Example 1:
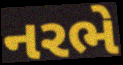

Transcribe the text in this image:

નરભે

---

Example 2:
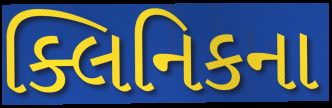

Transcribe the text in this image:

ક્લિનિકના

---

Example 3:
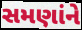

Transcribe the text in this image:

સમણાંને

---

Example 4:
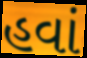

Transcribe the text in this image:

હવાં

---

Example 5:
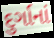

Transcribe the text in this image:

દુર્ગાનાં